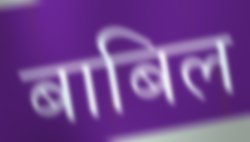
बाबिल